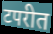
टपरीत